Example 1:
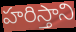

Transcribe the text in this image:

హరిస్తాని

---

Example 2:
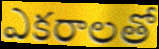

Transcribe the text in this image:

ఎకరాలతో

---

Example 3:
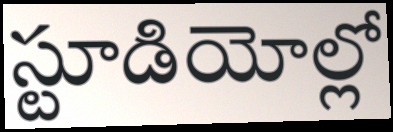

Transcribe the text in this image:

స్టూడియోల్లో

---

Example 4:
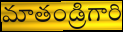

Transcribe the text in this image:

మాతండ్రిగారి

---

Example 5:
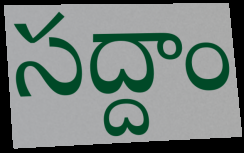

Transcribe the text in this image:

సద్దాం